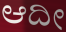
ಆದೀ